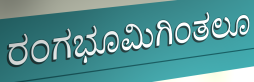
ರಂಗಭೂಮಿಗಿಂತಲೂ